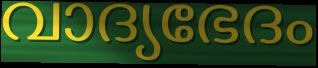
വാദ്യഭേദം